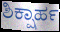
ಶಿಕ್ಷಾರ್ಹ